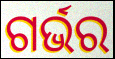
ଗର୍ଭର